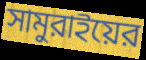
সামুরাইয়ের